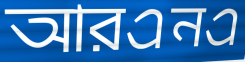
আরএনএ